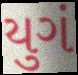
યુગં